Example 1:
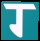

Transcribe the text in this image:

ग्‍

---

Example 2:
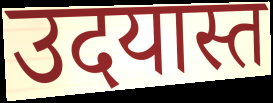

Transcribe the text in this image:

उदयास्त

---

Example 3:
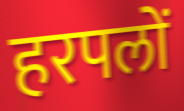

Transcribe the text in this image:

हरपलों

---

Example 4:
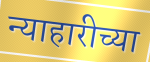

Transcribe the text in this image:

न्याहारीच्या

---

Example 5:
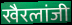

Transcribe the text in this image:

खैरलांजी